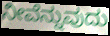
ನೀವೆನ್ನುವುದು